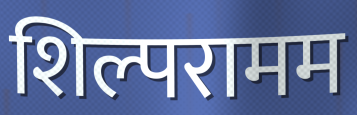
शिल्परामम